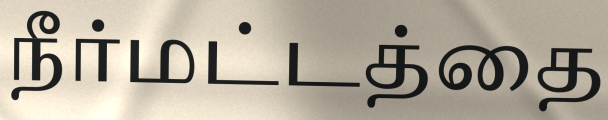
நீர்மட்டத்தை